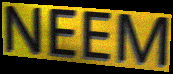
NEEM